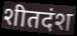
शीतदंश